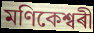
মণিকেশ্বৰী